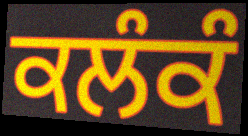
ਕਲੰਕੰ